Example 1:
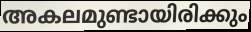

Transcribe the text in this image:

അകലമുണ്ടായിരിക്കും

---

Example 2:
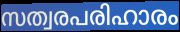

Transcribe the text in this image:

സത്വരപരിഹാരം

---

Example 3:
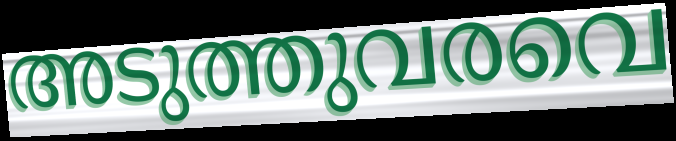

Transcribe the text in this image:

അടുത്തുവരവെ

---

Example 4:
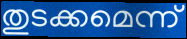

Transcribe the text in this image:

തുടക്കമെന്ന്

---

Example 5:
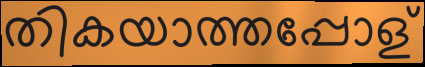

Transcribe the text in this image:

തികയാത്തപ്പോള്